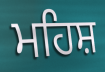
ਮਹਿਸ਼